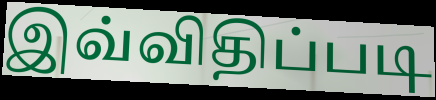
இவ்விதிப்படி